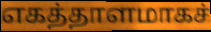
எகத்தாளமாகச்